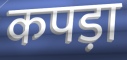
कपड़ा